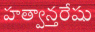
హత్వాన్తరేషు